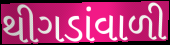
થીગડાંવાળી